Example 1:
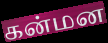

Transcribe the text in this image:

கன்மன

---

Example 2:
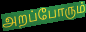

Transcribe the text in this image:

அறப்போரும்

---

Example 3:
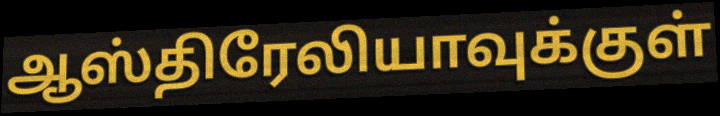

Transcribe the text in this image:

ஆஸ்திரேலியாவுக்குள்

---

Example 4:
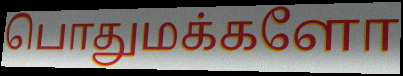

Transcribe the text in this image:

பொதுமக்களோ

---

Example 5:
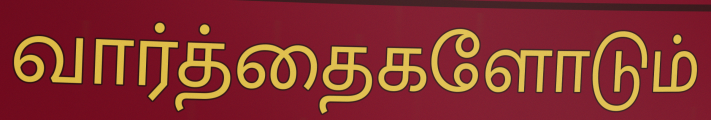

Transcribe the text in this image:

வார்த்தைகளோடும்